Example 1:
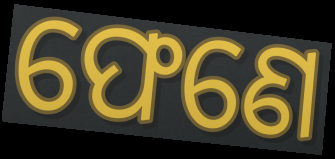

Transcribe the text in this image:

ଫେଣେ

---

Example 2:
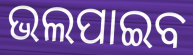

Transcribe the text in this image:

ଭଲପାଇବ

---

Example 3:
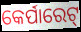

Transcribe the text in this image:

କେର୍ପାରେଟ୍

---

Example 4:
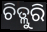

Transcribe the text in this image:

ଚିତ୍ଲୁରି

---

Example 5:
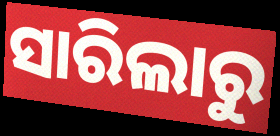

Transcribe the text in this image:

ସାରିଲାରୁ